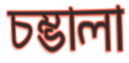
চম্ভালা